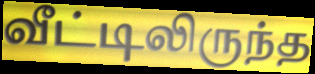
வீட்டிலிருந்த